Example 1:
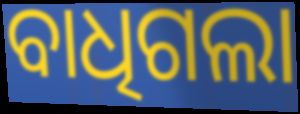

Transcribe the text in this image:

ବାଧିଗଲା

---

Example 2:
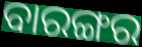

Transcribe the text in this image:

ବାରଙ୍ଗର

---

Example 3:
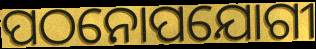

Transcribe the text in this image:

ପଠନୋପଯୋଗୀ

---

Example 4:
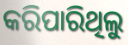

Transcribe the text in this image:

କରିପାରିଥିଲୁ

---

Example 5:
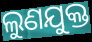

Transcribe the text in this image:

ଲୁଣଯୁକ୍ତ